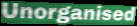
Unorganised